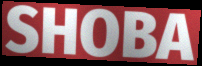
SHOBA